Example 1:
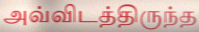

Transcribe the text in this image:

அவ்விடத்திருந்த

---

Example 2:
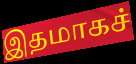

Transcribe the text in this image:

இதமாகச்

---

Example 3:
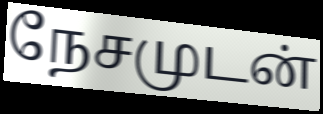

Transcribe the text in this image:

நேசமுடன்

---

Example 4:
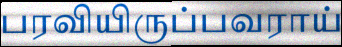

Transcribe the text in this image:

பரவியிருப்பவராய்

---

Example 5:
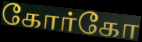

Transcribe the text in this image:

கோர்கோ